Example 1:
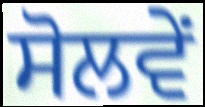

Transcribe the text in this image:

ਸੋਲਵੇਂ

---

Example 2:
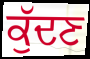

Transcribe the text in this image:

ਕੁੱਦਣ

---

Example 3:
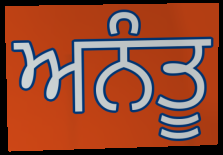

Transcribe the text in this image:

ਅਨੰਤੂ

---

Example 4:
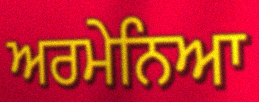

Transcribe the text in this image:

ਅਰਮੇਨਿਆ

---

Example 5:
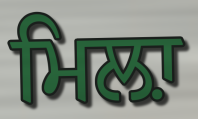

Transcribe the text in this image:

ਮਿਲ਼ਾ